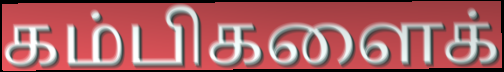
கம்பிகளைக்